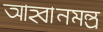
আহ্বানমন্ত্র